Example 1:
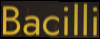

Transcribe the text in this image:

Bacilli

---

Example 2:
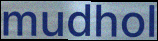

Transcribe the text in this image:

mudhol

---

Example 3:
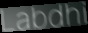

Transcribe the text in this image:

Labdhi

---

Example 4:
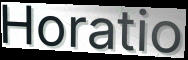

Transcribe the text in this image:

Horatio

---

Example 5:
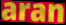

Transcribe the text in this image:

aran